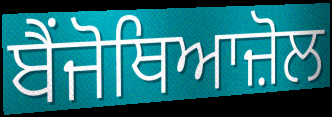
ਬੈਂਜੋਥਿਆਜ਼ੋਲ